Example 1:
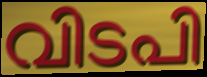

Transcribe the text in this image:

വിടപി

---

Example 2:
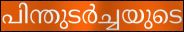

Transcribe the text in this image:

പിന്തുടർച്ചയുടെ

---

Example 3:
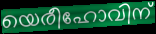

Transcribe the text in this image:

യെരീഹോവിന്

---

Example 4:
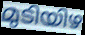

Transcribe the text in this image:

മുടിയിഴ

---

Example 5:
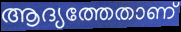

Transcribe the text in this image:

ആദ്യത്തേതാണ്